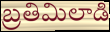
బ్రతిమిలాడి